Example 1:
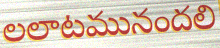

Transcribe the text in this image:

లలాటమునందలి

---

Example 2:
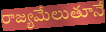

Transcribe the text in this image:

రాజ్యమేలుతూనే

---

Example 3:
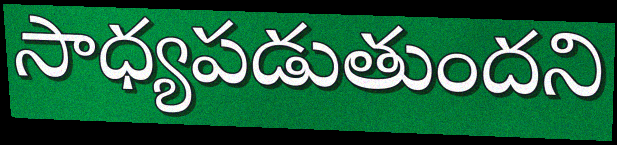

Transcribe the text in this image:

సాధ్యపడుతుందని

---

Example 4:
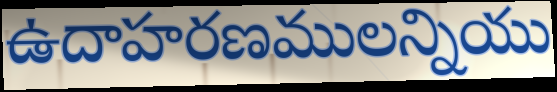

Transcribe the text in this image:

ఉదాహరణములన్నియు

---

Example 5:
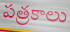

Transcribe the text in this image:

పత్రకాలు